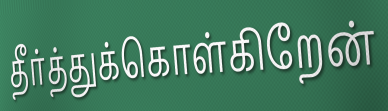
தீர்த்துக்கொள்கிறேன்